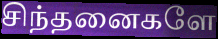
சிந்தனைகளே